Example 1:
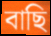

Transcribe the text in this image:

বাছি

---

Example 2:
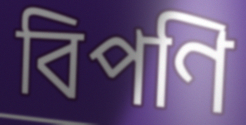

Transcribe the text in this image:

বিপণি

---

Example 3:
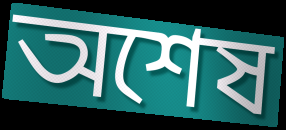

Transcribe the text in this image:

অশেষ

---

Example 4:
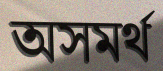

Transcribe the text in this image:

অসমৰ্থ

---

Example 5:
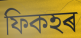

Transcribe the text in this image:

ফিকহৰ